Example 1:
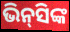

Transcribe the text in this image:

ଭିନ୍‍ସିଙ୍କ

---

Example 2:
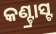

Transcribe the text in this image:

କଣ୍ଟ୍ରାସ୍ଟ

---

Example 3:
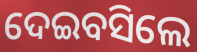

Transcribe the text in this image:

ଦେଇବସିଲେ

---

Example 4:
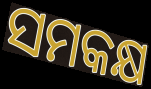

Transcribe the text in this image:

ସମକକ୍ଷ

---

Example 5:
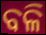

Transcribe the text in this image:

ବଳି